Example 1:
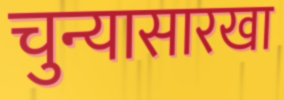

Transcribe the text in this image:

चुन्यासारखा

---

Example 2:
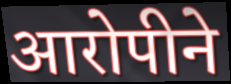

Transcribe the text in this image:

आरोपीने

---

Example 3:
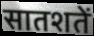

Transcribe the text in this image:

सातशतें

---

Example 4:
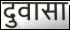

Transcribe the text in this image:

दुवासा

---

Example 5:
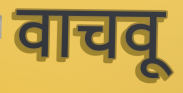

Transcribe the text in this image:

वाचवू